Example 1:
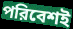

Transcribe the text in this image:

পরিবেশই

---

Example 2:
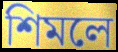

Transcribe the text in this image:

শিমলে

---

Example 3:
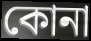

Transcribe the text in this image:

কোনা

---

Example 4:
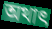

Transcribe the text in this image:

অথাৎ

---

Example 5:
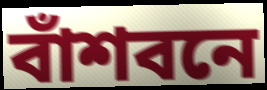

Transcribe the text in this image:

বাঁশবনে